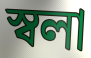
স্বলা